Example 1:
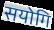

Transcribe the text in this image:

सयोगि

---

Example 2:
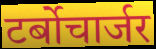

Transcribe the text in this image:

टर्बोचार्जर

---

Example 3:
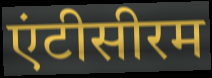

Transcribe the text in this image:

एंटीसीरम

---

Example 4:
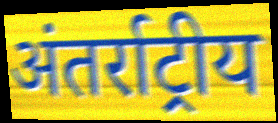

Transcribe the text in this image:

अंतर्राट्रीय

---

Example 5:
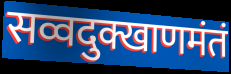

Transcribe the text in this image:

सव्वदुक्खाणमंतं